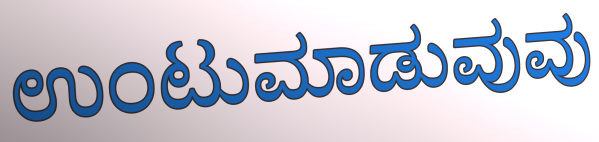
ಉಂಟುಮಾಡುವುವು